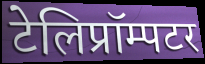
टेलिप्रॉम्पटर